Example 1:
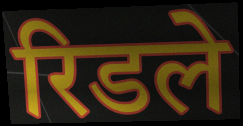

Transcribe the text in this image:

रिडले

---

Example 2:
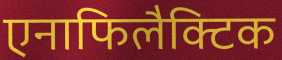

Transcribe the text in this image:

एनाफिलैक्टिक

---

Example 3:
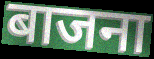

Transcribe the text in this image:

बाजना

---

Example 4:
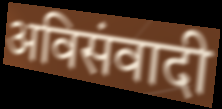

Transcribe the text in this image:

अविसंवादी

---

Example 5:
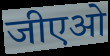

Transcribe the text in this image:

जीएओ